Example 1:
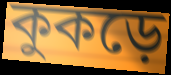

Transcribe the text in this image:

কুকড়ে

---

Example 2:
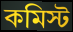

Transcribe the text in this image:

কমিস্ট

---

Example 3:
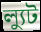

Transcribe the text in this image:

ল্যুট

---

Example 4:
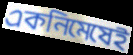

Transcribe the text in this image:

একনিমেষেই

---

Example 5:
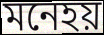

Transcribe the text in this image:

মনেহয়